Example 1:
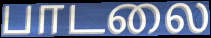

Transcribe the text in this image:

பாடலை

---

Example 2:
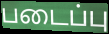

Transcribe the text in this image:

படைப்பு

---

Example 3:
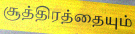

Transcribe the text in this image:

சூத்திரத்தையும்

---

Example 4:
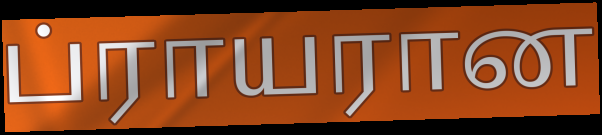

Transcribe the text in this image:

ப்ராயரான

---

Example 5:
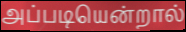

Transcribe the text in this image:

அப்படியென்றால்